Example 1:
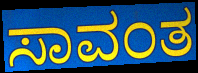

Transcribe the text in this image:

ಸಾವಂತ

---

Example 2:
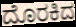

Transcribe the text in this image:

ದೊರಕಿದ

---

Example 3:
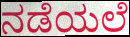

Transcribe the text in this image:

ನಡೆಯಲೆ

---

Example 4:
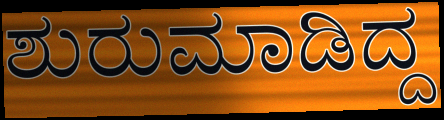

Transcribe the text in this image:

ಶುರುಮಾಡಿದ್ದ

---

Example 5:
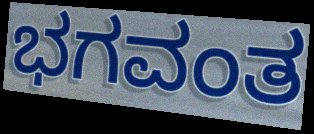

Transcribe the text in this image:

ಭಗವಂತ